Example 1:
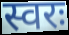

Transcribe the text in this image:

स्वरः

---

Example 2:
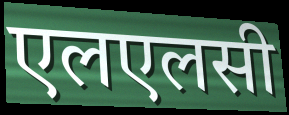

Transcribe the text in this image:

एलएलसी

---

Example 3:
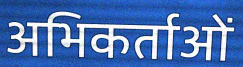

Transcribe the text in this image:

अभिकर्ताओं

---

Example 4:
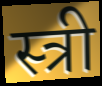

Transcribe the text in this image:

स्त्री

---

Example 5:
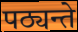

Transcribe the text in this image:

पठ्यन्ते